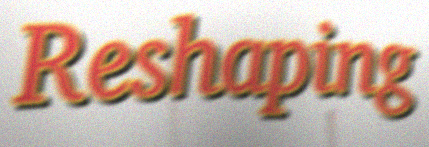
Reshaping